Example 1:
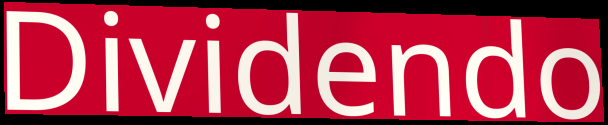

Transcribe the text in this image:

Dividendo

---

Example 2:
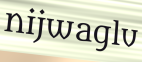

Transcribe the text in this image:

nijwaglu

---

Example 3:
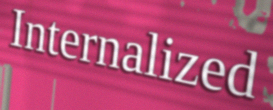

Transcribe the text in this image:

Internalized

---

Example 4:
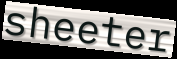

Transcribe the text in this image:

sheeter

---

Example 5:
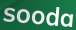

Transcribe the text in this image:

sooda